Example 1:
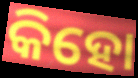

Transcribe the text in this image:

କିହୋ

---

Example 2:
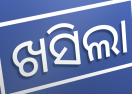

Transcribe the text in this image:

ଖସିଲା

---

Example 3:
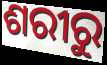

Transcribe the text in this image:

ଶରୀରୁ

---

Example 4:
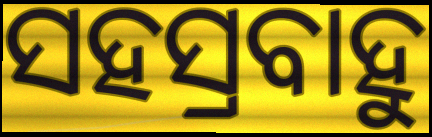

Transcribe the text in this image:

ସହସ୍ରବାହୁ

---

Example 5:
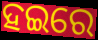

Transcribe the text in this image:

ହଇରେ